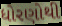
ધોરણોથી